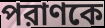
পরাণকে